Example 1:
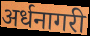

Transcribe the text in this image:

अर्धनागरी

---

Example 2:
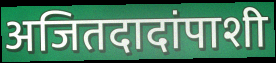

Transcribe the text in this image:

अजितदादांपाशी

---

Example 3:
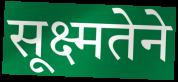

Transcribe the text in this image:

सूक्ष्मतेने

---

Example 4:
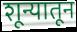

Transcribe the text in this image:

शून्यातून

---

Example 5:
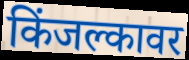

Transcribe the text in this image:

किंजल्कावर